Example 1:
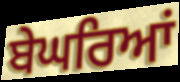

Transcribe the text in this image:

ਬੇਘਰਿਆਂ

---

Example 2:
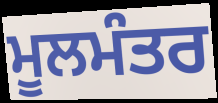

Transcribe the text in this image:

ਮੂਲਮੰਤਰ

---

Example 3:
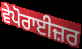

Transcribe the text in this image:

ਵੇਪੋਰਾਈਜ਼ਰ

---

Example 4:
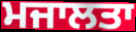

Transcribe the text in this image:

ਮਜਾਲਤਾ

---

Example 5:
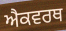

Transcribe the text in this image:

ਐਕਵਰਥ